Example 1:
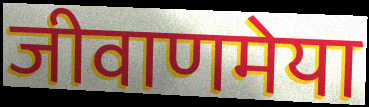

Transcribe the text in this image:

जीवाणमेया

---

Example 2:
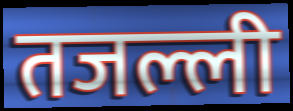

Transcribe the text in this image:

तजल्ली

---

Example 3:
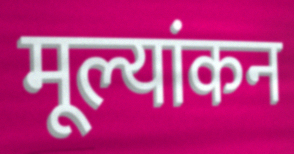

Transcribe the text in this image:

मूल्यांकन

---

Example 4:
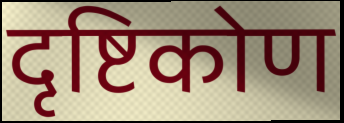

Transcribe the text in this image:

दृष्टिकोण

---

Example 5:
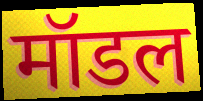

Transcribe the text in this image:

मॉडल